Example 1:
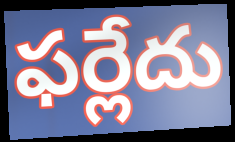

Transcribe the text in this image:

ఫర్లేదు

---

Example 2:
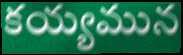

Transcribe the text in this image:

కయ్యమున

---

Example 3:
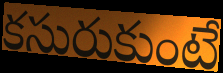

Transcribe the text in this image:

కసురుకుంటే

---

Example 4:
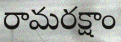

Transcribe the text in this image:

రామరక్షాం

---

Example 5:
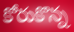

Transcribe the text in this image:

కోరుకొన్న